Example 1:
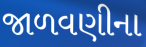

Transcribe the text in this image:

જાળવણીના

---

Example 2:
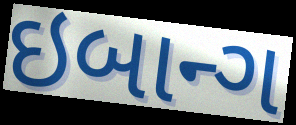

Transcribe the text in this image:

ઇબાન્ગ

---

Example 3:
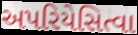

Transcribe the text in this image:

અપરિયેસિત્વા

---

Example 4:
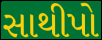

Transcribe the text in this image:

સાથીપો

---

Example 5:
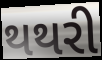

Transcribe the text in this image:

થથરી